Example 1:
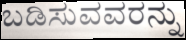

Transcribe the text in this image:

ಬಡಿಸುವವರನ್ನು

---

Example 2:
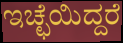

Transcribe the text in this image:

ಇಚ್ಛೆಯಿದ್ದರೆ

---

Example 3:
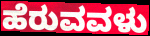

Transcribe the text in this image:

ಹೆರುವವಳು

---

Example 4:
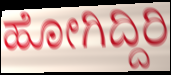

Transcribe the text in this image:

ಹೋಗಿದ್ದಿರಿ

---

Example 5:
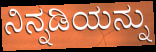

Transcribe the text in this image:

ನಿನ್ನಡಿಯನ್ನು